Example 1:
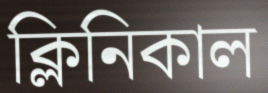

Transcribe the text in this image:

ক্লিনিকাল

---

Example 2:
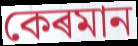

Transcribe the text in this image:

কেৰমান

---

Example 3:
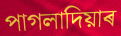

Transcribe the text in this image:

পাগলাদিয়াৰ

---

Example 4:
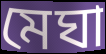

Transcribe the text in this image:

মেঘা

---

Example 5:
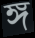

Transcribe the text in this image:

ঙ্গ